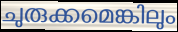
ചുരുക്കമെങ്കിലും